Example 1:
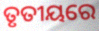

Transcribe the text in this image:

ତୃତୀୟରେ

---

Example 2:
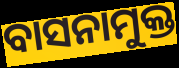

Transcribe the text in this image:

ବାସନାମୁକ୍ତ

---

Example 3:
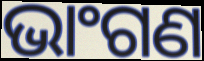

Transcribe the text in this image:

ଭାଂଗଣ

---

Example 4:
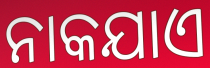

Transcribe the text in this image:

ନାକଯାଏ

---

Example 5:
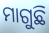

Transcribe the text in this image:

ମାଗୁଛି